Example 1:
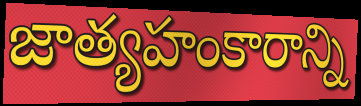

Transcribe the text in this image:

జాత్యహంకారాన్ని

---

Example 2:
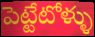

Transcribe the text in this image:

పెట్టేటోళ్ళు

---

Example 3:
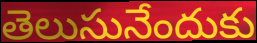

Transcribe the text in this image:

తెలుసునేందుకు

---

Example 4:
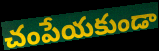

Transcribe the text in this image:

చంపేయకుండా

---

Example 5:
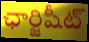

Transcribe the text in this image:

ఛార్జిషీట్